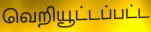
வெறியூட்டப்பட்ட